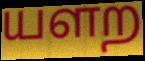
யளற